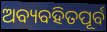
ଅବ୍ୟବହିତପୂର୍ବ